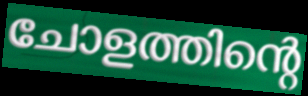
ചോളത്തിന്റെ